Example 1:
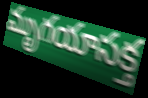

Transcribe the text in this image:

మృగయాసక్త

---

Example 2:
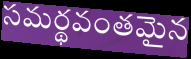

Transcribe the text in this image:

సమర్థవంతమైన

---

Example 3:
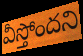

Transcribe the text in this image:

వీస్తోందని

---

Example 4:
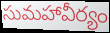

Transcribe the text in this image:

సుమహావీర్యం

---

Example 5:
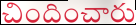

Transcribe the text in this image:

చిందించారు